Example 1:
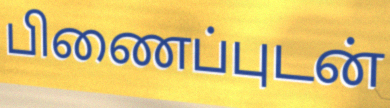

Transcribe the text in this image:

பிணைப்புடன்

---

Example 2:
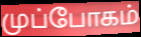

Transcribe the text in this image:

முப்போகம்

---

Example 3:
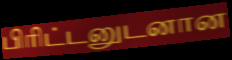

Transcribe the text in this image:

பிரிட்டனுடனான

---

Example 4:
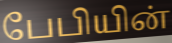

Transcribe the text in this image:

பேபியின்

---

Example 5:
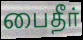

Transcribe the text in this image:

பைதீர்